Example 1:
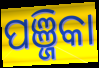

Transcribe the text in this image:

ପଞ୍ଜିକା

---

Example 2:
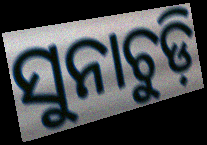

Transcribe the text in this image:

ସୁନାଚୁଡ଼ି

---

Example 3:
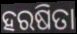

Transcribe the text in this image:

ହରଷିତା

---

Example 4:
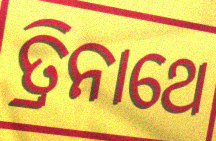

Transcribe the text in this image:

ତ୍ରିନାଥେ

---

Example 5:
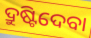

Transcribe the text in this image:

ଦ୍ରୁଷ୍ଟିଦେବା